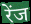
रेंज